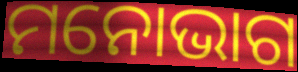
ମନୋଭାଗ